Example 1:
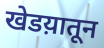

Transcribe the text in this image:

खेडय़ातून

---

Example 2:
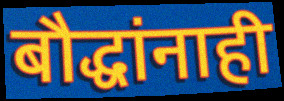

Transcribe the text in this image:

बौद्धांनाही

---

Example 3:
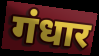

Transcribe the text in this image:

गंधार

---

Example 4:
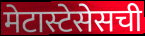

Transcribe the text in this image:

मेटास्टेसेसची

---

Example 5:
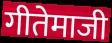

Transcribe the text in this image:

गीतेमाजी